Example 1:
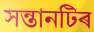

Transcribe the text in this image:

সন্তানটিৰ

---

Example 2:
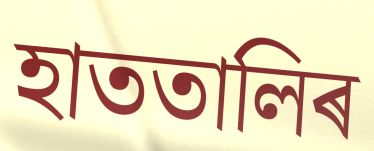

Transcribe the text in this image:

হাততালিৰ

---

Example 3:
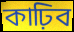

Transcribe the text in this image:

কাঢ়িব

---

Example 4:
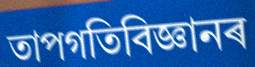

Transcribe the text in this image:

তাপগতিবিজ্ঞানৰ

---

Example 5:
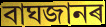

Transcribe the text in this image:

বাঘজানৰ